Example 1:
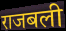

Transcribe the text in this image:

राजबली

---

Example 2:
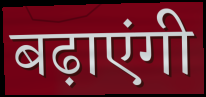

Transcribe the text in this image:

बढ़ाएंगी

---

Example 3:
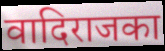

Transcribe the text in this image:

वादिराजका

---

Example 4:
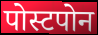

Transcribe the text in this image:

पोस्टपोन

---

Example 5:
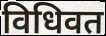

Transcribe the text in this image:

विधिवत